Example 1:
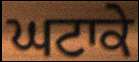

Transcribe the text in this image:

ਘਟਾਕੇ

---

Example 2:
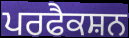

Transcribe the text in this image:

ਪਰਫੈਕਸ਼ਨ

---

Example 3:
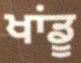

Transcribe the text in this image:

ਖਾਂਡੂ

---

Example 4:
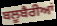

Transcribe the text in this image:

ਬਲੂਬੈਰੀਆਂ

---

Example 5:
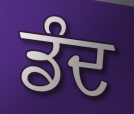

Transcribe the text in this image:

ਡੰਦ